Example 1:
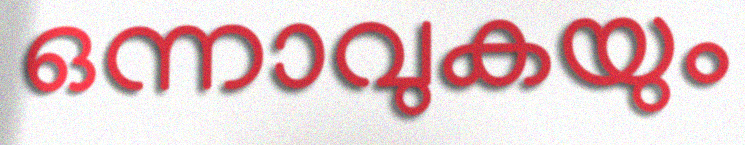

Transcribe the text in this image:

ഒന്നാവുകയും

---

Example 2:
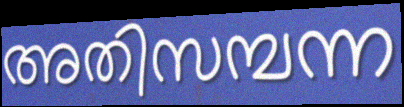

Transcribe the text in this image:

അതിസമ്പന്ന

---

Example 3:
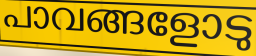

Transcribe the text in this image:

പാവങ്ങളോടു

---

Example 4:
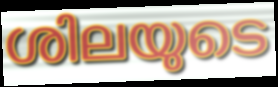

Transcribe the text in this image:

ശിലയുടെ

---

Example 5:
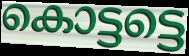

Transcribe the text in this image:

കൊട്ടട്ടെ